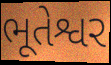
ભૂતેશ્વર